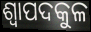
ଶ୍ୱାପଦକୁଳ